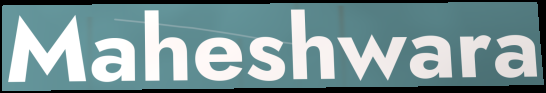
Maheshwara